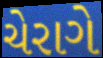
ચેરાગે